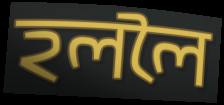
হললৈ